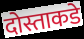
दोस्ताकडे